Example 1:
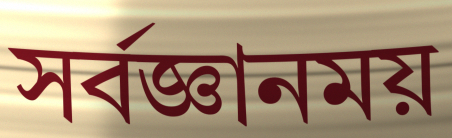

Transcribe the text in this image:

সর্বজ্ঞানময়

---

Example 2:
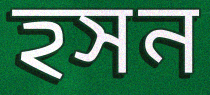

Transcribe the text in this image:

হসন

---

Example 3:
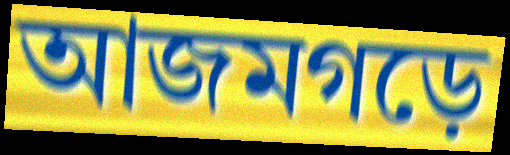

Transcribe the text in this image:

আজমগড়ে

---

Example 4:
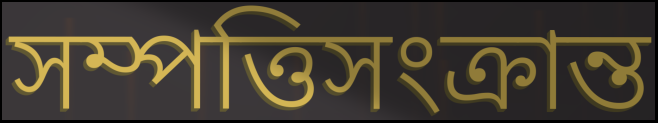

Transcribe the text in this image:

সম্পত্তিসংক্রান্ত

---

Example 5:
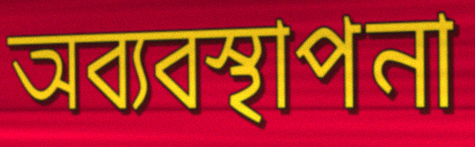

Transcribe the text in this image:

অব্যবস্থাপনা